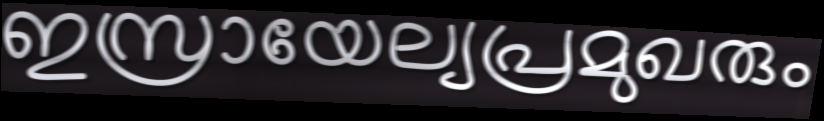
ഇസ്രായേല്യപ്രമുഖരും